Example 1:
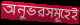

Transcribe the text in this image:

অনুভৱসমূহেই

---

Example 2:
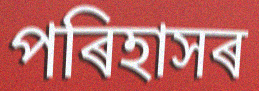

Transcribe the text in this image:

পৰিহাসৰ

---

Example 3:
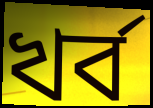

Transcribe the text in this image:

খৰ্ব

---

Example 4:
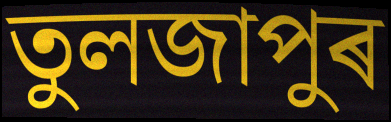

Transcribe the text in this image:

তুলজাপুৰ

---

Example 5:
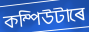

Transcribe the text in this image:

কম্পিউটাৰে